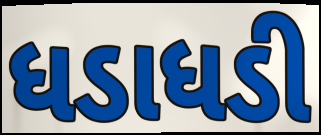
ધડાધડી